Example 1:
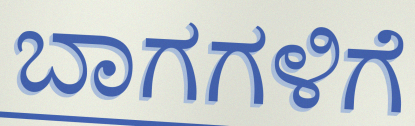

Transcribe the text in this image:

ಬಾಗಗಳಿಗೆ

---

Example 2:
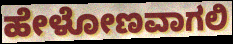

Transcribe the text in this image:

ಹೇಳೋಣವಾಗಲಿ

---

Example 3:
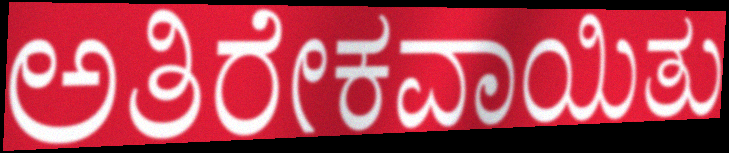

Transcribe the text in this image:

ಅತಿರೇಕವಾಯಿತು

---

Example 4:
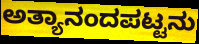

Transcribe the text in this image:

ಅತ್ಯಾನಂದಪಟ್ಟನು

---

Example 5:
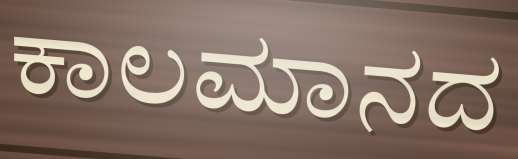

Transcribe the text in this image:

ಕಾಲಮಾನದ